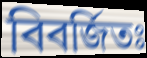
বিবর্জিতঃ